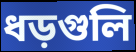
ধড়গুলি